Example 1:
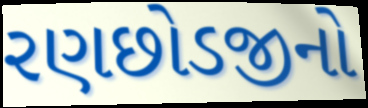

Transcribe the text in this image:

રણછોડજીનો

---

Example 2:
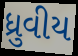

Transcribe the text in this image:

ધ્રુવીય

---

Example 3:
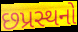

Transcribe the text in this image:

છપ્રસ્થનો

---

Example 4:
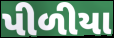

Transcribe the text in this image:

પીળીયા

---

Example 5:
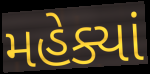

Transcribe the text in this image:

મહેક્યાં